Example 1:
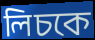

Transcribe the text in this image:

লিচকে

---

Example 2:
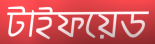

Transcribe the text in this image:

টাইফয়েড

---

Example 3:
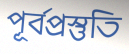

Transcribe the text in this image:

পূর্বপ্রস্তুতি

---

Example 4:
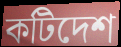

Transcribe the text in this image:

কটিদেশ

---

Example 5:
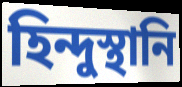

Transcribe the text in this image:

হিন্দুস্থানি